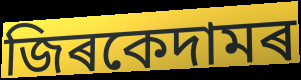
জিৰকেদামৰ